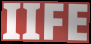
IIFE